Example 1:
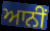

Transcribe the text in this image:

ਆਨੀਂ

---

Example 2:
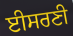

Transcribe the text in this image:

ਈਸਰਣੀ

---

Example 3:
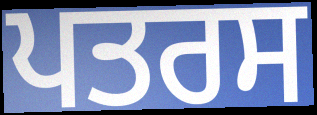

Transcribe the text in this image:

ਪਤਰਸ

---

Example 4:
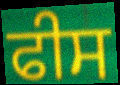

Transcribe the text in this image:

ਫੀਸ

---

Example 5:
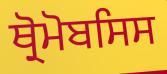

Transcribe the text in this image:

ਥ੍ਰੋਮੋਬਸਿਸ